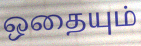
ஒதையும்